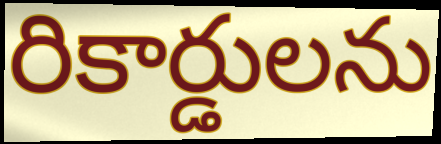
రికార్డులను